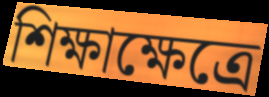
শিক্ষাক্ষেত্রে